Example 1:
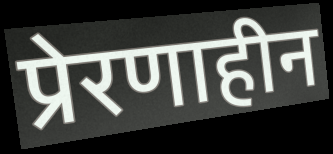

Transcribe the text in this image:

प्रेरणाहीन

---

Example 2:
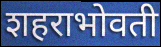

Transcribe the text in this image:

शहराभोवती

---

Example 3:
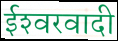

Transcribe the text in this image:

ईश्वरवादी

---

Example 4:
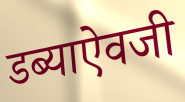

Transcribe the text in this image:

डब्याऐवजी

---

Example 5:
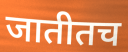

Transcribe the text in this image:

जातीतच